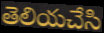
తెలియచేసి